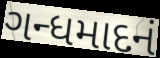
ગન્ધમાદનં